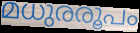
മധുരരൂപം